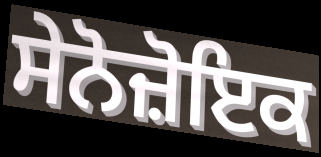
ਸੇਨੋਜ਼ੋਇਕ